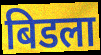
बिडला